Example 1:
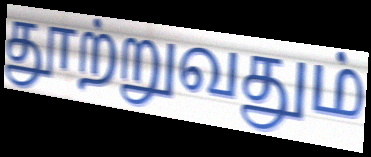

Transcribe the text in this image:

தூற்றுவதும்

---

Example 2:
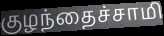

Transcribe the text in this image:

குழந்தைச்சாமி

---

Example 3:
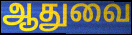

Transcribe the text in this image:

ஆதுவை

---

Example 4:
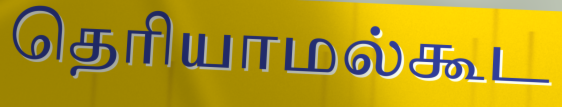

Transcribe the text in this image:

தெரியாமல்கூட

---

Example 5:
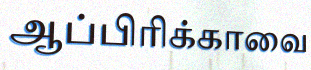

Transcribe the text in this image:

ஆப்பிரிக்காவை